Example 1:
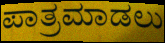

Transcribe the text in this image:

ಪಾತ್ರಮಾಡಲು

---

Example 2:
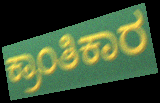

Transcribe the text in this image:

ಕ್ರಾಂತಿಕಾರ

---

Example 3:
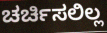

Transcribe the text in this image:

ಚರ್ಚಿಸಲಿಲ್ಲ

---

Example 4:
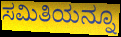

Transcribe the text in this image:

ಸಮಿತಿಯನ್ನೂ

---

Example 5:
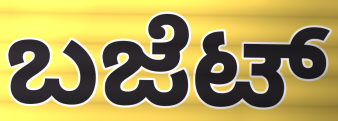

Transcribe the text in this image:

ಬಜೆಟ್